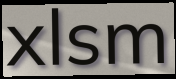
xlsm